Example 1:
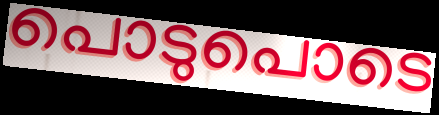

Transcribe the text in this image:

പൊടുപൊടെ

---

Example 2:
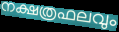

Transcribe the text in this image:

നക്ഷത്രഫലവും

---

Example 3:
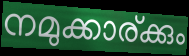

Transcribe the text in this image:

നമുക്കാര്ക്കും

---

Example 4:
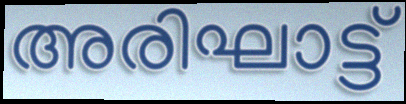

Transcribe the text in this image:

അരിഘാട്ട്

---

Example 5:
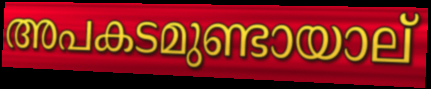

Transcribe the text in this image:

അപകടമുണ്ടായാല്